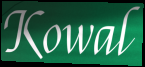
Kowal